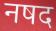
नषद